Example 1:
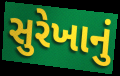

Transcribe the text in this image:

સુરેખાનું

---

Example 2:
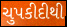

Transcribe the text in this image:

ચુપકીદીથી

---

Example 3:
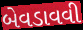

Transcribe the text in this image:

બેવડાવવી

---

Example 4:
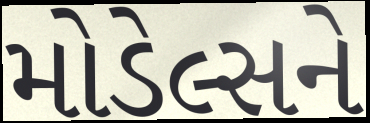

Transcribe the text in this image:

મોડેલ્સને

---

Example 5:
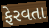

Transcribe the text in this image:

ફેરવતા